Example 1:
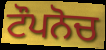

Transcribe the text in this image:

ਟੌਪਨੋਚ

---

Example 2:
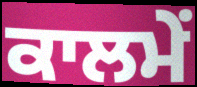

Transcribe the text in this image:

ਕਾਲਮੇਂ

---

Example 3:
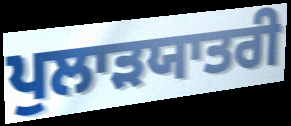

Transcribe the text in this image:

ਪੁਲਾੜਯਾਤਰੀ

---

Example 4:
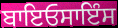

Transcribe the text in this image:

ਬਾਇਓਸਾਇੰਸ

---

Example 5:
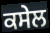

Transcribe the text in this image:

ਕਸੇਲ